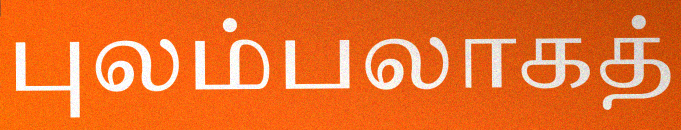
புலம்பலாகத்